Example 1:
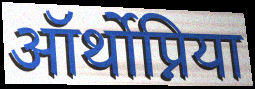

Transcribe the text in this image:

ऑर्थोप्निया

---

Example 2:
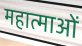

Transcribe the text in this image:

महात्माओं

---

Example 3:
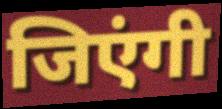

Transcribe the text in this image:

जिएंगी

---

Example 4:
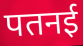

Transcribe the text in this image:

पतनई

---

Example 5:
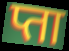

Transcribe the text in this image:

प्ता